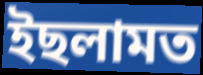
ইছলামত